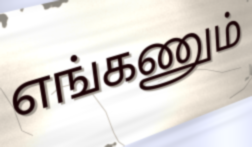
எங்கணும்